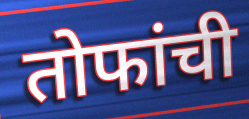
तोफांची